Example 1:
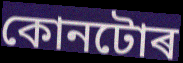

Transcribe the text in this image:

কোনটোৰ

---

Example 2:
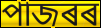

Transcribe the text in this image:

পাজৰৰ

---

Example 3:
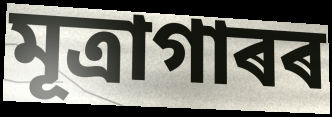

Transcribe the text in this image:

মূত্ৰাগাৰৰ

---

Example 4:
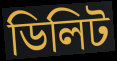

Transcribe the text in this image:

ডিলিট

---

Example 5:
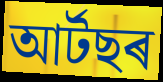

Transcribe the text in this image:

আৰ্টছৰ